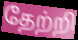
தேற்றி